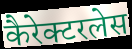
कैरेक्टरलेस